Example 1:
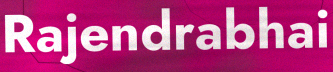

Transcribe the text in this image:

Rajendrabhai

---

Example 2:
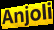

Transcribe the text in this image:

Anjoli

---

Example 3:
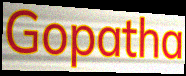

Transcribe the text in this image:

Gopatha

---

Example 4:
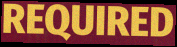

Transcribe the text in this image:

REQUIRED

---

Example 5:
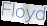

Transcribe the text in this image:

Floyd